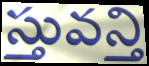
స్తువన్తి